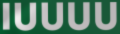
IUUUU